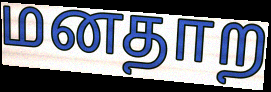
மனதாற